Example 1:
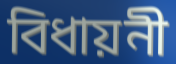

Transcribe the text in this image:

বিধায়নী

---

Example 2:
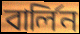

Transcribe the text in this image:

বার্লিন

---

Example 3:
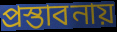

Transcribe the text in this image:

প্রস্তাবনায়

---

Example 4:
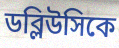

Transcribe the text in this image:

ডব্লিউসিকে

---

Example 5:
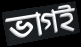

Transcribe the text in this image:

ভাগই